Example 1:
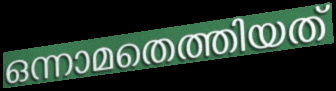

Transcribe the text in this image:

ഒന്നാമതെത്തിയത്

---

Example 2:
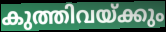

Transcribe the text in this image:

കുത്തിവയ്ക്കും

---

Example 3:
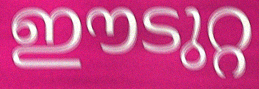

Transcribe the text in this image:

ഈടുറ്റ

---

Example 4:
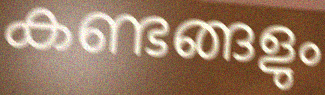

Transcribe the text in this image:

കണ്ടങ്ങളും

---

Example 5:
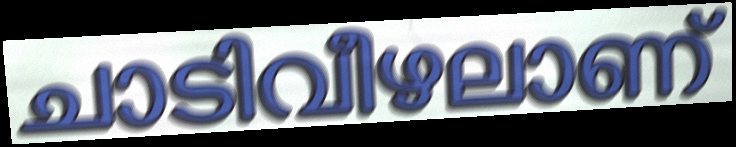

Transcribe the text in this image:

ചാടിവീഴലാണ്